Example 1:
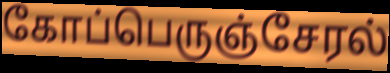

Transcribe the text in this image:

கோப்பெருஞ்சேரல்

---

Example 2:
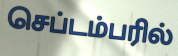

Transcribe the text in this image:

செப்டம்பரில்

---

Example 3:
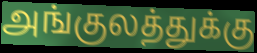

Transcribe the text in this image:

அங்குலத்துக்கு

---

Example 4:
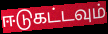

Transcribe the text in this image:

ஈடுகட்டவும்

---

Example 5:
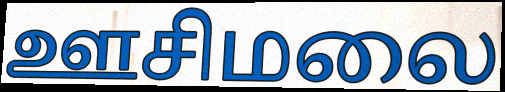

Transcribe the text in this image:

ஊசிமலை